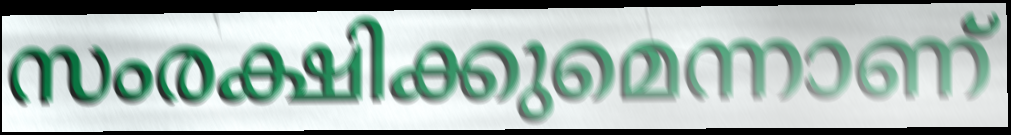
സംരക്ഷിക്കുമെന്നാണ്